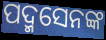
ପଦ୍ମସେନଙ୍କ